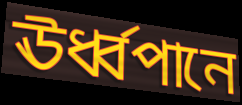
ঊর্ধ্বপানে